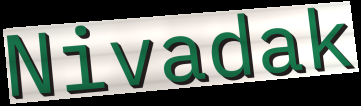
Nivadak